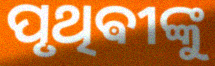
ପୃଥିଵୀଙ୍କୁ